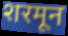
शरमून